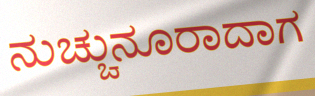
ನುಚ್ಚುನೂರಾದಾಗ